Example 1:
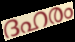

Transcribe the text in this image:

ദഹരം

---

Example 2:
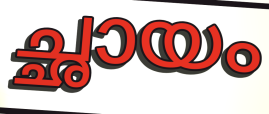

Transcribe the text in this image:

ച്ഛായം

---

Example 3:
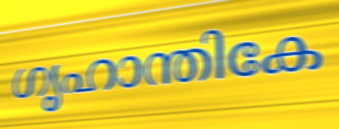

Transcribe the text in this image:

ഗൃഹാന്തികേ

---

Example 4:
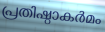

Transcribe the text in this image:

പ്രതിഷ്ഠാകർമം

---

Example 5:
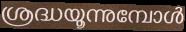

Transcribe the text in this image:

ശ്രദ്ധയൂന്നുമ്പോൾ